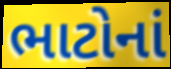
ભાટોનાં